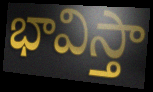
భావిస్తా